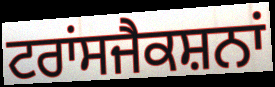
ਟਰਾਂਸਜੈਕਸ਼ਨਾਂ